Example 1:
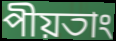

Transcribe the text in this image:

পীয়তাং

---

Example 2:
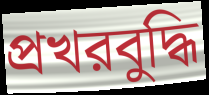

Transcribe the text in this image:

প্রখরবুদ্ধি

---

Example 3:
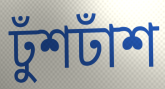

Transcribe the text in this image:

ঢুঁশঢাঁশ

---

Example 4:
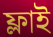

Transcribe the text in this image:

ফ্লাই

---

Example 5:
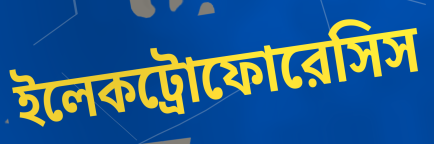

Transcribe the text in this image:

ইলেকট্রোফোরেসিস